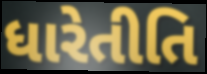
ધારેતીતિ